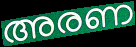
അരണ